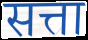
सत्ता